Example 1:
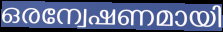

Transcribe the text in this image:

ഒരന്വേഷണമായി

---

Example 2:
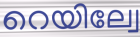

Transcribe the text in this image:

റെയില്വേ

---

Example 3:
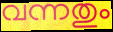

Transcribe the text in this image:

വന്നതും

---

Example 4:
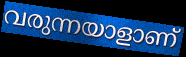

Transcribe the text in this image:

വരുന്നയാളാണ്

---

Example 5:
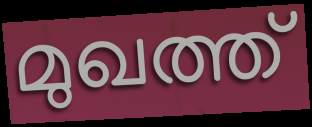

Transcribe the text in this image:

മുഖത്ത്